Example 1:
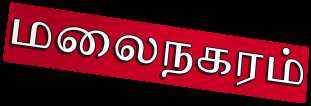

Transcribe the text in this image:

மலைநகரம்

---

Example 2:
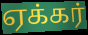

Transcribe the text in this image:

ஏக்கர்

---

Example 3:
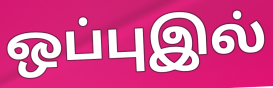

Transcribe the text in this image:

ஒப்புஇல்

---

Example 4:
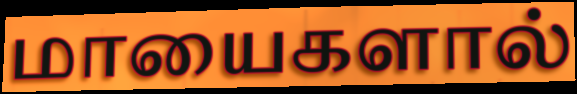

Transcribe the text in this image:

மாயைகளால்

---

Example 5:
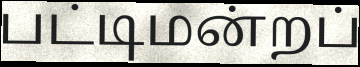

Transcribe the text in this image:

பட்டிமன்றப்